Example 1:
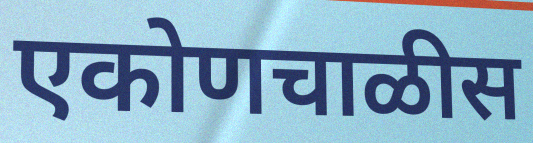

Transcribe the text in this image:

एकोणचाळीस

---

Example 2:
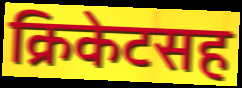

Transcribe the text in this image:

क्रिकेटसह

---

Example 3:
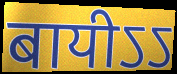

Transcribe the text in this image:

बायीऽऽ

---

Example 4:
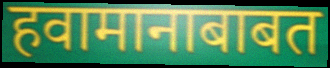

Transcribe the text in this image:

हवामानाबाबत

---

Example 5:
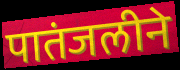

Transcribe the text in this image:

पातंजलीने